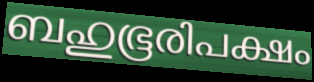
ബഹുഭൂരിപക്ഷം